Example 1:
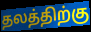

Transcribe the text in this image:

தலத்திற்கு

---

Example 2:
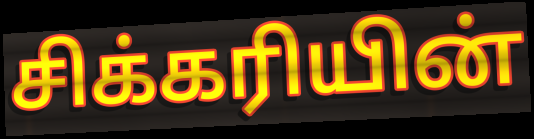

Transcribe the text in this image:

சிக்கரியின்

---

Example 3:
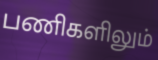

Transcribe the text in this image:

பணிகளிலும்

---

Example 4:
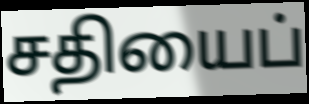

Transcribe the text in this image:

சதியைப்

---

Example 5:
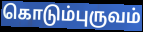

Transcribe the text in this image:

கொடும்புருவம்